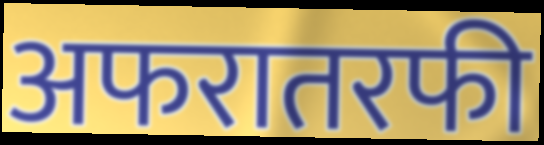
अफरातरफी